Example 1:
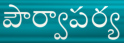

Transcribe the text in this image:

పౌర్వాపర్య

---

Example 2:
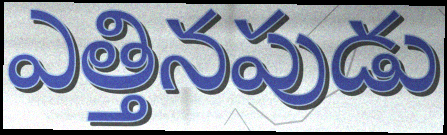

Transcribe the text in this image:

ఎత్తినపుడు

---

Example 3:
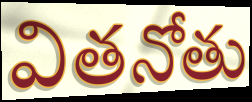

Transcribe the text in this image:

వితనోతు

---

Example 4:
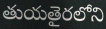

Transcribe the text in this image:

తుయతైరలోని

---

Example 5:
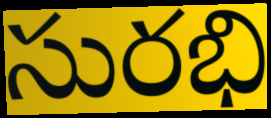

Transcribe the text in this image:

సురభి